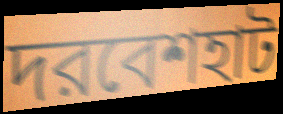
দরবেশহাট